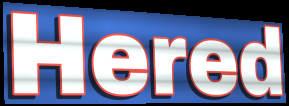
Hered